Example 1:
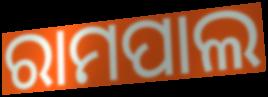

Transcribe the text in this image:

ରାମପାଲ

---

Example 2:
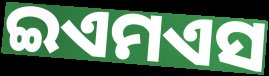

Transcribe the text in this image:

ଇଏମଏସ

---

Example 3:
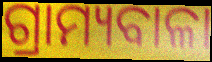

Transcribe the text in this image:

ଗ୍ରାମ୍ୟବାଳା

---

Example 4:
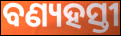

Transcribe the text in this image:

ବଣ୍ୟହସ୍ତୀ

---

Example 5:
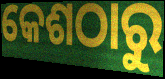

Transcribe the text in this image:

କେଶଠାରୁ